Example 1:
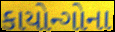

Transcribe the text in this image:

કાયોન્ગોના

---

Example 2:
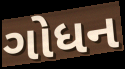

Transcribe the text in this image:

ગોધન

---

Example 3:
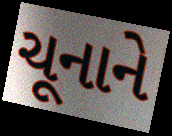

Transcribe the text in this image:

ચૂનાને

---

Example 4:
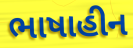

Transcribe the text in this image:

ભાષાહીન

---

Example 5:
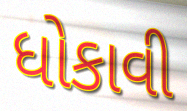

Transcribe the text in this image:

ધોકાવી